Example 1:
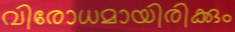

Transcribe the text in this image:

വിരോധമായിരിക്കും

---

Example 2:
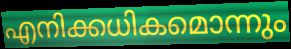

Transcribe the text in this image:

എനിക്കധികമൊന്നും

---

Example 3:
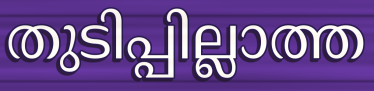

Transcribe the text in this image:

തുടിപ്പില്ലാത്ത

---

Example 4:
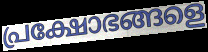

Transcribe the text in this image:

പ്രക്ഷോഭങ്ങളെ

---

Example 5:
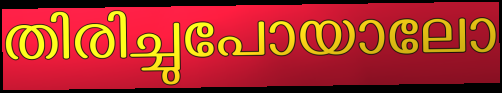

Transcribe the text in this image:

തിരിച്ചുപോയാലോ